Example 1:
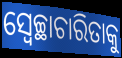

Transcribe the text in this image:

ସ୍ଵେଚ୍ଛାଚାରିତାକୁ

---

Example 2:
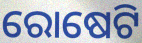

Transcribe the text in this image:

ରୋଷେଟି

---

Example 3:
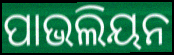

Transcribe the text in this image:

ପାଭଲିୟନ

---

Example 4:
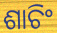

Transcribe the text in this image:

ଶାଚିଂ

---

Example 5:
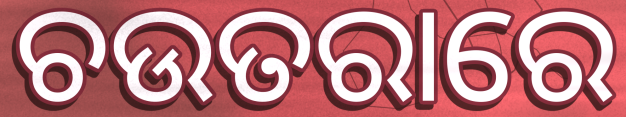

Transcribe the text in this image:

ଚଉତରାରେ